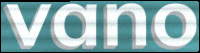
vano